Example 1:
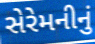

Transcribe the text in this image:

સેરેમનીનું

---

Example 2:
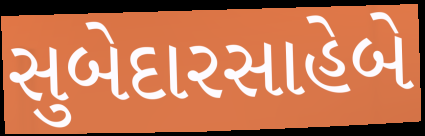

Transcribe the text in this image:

સુબેદારસાહેબે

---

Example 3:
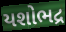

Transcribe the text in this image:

યશોભદ્ર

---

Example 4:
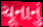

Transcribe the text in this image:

ચૂનાનું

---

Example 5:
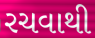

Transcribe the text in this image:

રચવાથી